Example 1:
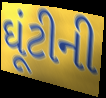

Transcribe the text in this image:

ઘૂંટીની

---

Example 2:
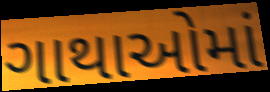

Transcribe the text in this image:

ગાથાઓમાં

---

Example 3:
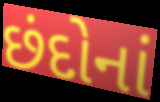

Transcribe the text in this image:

છંદોનાં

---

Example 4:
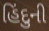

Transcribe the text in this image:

હિંદુની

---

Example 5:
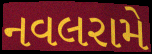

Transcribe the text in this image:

નવલરામે